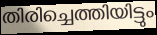
തിരിച്ചെത്തിയിട്ടും